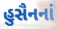
હુસૈનનાં